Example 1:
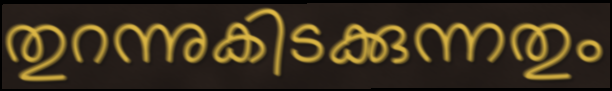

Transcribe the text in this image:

തുറന്നുകിടക്കുന്നതും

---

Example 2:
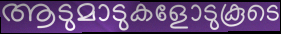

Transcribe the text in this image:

ആടുമാടുകളോടുകൂടെ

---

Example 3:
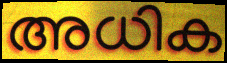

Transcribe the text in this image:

അധിക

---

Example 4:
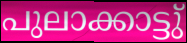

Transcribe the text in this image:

പുലാക്കാട്ടു്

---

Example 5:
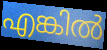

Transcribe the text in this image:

എങ്കിൽ